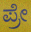
ಪ್ರೇ